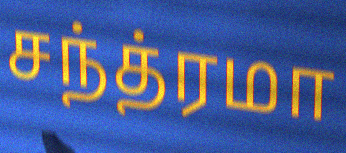
சந்த்ரமா